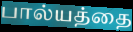
பால்யத்தை